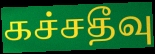
கச்சதீவு